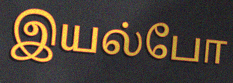
இயல்போ